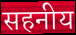
सहनीय